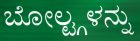
ಬೋಲ್ಟ್ಗಳನ್ನು